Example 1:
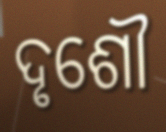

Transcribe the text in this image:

ଦୃଶୌ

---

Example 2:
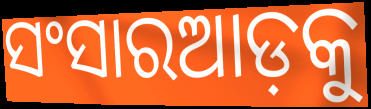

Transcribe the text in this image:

ସଂସାରଆଡ଼କୁ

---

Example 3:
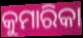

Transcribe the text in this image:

କୁମାରିକା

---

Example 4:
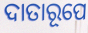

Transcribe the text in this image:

ଦାତାରୂପେ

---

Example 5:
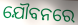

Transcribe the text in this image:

ଯୌବନରେ